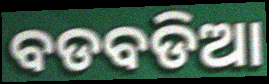
ବଡବଡିଆ